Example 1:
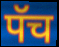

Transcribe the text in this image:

पॅच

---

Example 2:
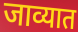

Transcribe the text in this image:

जाव्यात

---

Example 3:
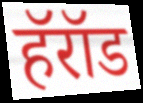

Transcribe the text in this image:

हॅरॉड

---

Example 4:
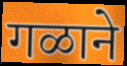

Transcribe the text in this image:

गळाने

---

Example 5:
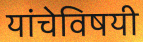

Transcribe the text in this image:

यांचेविषयी